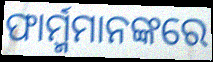
ଫାର୍ମ୍ମମାନଙ୍କରେ